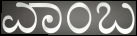
ಎಾಂಬ